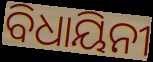
ବିଧାୟିନୀ